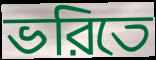
ভরিতে